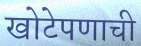
खोटेपणाची